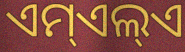
ଏମ୍ଏଲ୍ଏ